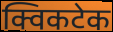
क्विकटेक